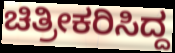
ಚಿತ್ರೀಕರಿಸಿದ್ದ